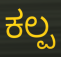
ಕಲ್ಪ